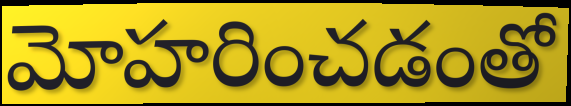
మోహరించడంతో